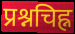
प्रश्नचिह्न